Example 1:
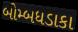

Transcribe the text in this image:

બોમ્બધડાકા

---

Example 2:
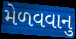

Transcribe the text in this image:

મેળવવાનુ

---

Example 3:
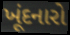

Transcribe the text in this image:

ખૂંદનારો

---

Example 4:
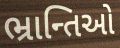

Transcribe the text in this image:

ભ્રાન્તિઓ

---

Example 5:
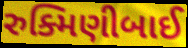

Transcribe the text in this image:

રુક્મિણીબાઈ